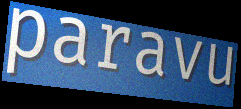
paravu